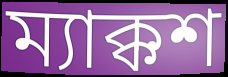
ম্যাক্কশ